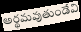
అర్థమవుతుండేవి